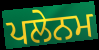
ਪਲੇਨਮ